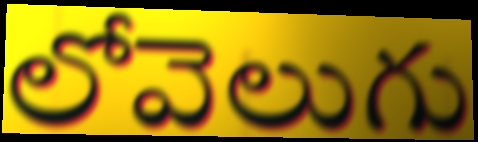
లోవెలుగు